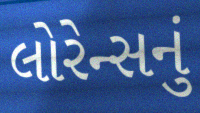
લોરેન્સનું